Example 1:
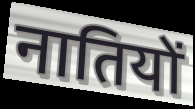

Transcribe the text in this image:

नातियों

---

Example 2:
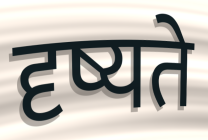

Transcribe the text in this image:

दृष्यते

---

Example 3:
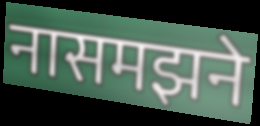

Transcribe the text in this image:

नासमझने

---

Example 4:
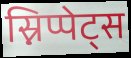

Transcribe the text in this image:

स्निप्पेट्स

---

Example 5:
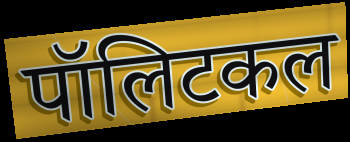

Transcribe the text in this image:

पॉलिटकल